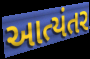
આત્યંતર